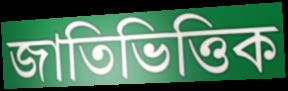
জাতিভিত্তিক